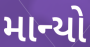
માન્યો